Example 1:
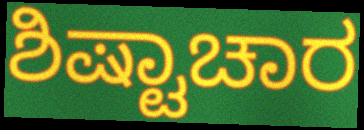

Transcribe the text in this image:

ಶಿಷ್ಟಾಚಾರ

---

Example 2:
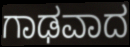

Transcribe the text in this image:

ಗಾಢವಾದ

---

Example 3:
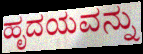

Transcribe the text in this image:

ಹೃದಯವನ್ನು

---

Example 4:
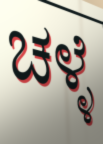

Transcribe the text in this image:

ಚಳ್ಳೆ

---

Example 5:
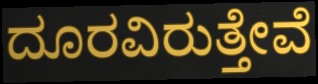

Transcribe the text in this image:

ದೂರವಿರುತ್ತೇವೆ